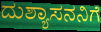
ದುಶ್ಯಾಸನನಿಗೆ